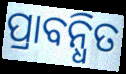
ପ୍ରାବନ୍ଧିତ